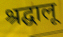
श्रद्घालू